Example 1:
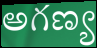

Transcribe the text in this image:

అగణ్య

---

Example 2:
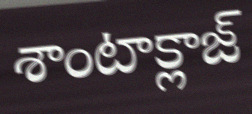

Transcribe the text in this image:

శాంటాక్లాజ్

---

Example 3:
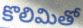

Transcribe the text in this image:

కొలిమితో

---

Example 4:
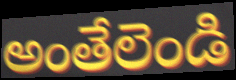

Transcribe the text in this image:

అంతేలెండి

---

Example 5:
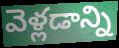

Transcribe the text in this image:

వెళ్లడాన్ని